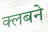
क्‍लबने